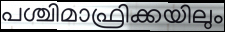
പശ്ചിമാഫ്രിക്കയിലും